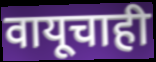
वायूचाही